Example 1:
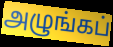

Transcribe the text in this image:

அழுங்கப்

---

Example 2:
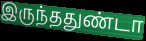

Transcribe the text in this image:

இருந்ததுண்டா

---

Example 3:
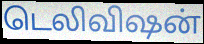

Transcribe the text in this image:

டெலிவிஷன்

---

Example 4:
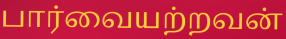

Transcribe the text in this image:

பார்வையற்றவன்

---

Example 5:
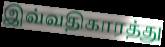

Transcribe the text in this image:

இவ்வதிகாரத்து